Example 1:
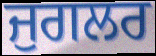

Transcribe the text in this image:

ਜੁਗਲਰ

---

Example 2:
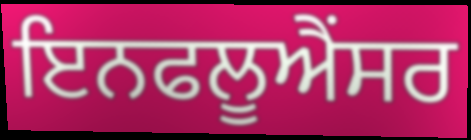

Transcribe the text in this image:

ਇਨਫਲੂਐਂਸਰ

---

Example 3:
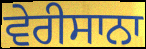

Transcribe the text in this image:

ਵੇਰੀਸਾਨਾ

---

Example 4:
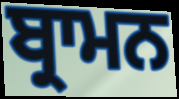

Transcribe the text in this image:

ਬ੍ਰਾਮਨ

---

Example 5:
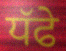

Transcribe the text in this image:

ਧੱਫੇ